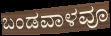
ಬಂಡವಾಳವೂ